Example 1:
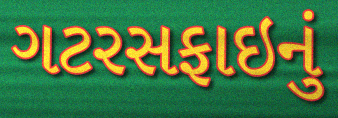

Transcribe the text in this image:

ગટરસફાઇનું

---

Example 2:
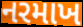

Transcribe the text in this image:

નરમાખ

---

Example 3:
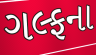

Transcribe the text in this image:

ગલ્ફના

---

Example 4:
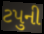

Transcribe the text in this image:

ટપુની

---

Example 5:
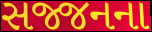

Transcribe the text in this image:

સજ્જનના